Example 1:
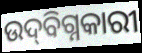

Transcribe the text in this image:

ଉଦ୍‌ବିଗ୍ନକାରୀ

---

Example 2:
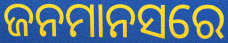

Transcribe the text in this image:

ଜନମାନସରେ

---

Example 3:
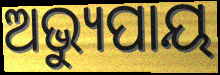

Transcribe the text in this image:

ଅଭ୍ୟୁପାୟ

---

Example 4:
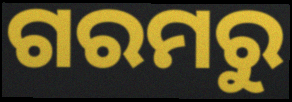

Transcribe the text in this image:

ଗରମରୁ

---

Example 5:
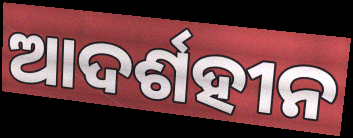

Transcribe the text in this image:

ଆଦର୍ଶହୀନ